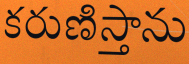
కరుణిస్తాను